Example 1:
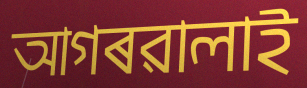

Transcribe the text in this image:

আগৰৱালাই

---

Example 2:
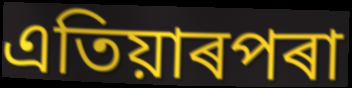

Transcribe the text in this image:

এতিয়াৰপৰা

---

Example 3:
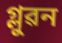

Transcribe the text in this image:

গ্লুৱন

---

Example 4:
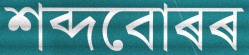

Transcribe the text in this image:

শব্দবোৰৰ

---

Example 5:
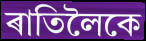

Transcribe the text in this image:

ৰাতিলৈকে